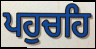
ਪਹੁਚਹਿ